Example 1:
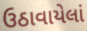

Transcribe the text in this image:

ઉઠાવાયેલાં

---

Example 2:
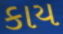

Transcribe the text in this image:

કાય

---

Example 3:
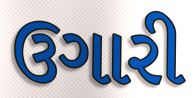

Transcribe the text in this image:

ઉગારી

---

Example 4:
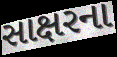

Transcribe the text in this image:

સાક્ષરના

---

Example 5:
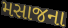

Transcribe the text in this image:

મસાજના